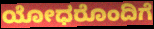
ಯೋಧರೊಂದಿಗೆ